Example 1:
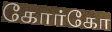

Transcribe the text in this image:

கோர்கோ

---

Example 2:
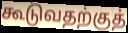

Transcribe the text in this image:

கூடுவதற்குத்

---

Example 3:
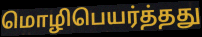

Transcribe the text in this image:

மொழிபெயர்த்தது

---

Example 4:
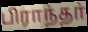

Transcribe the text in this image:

பிராந்தர்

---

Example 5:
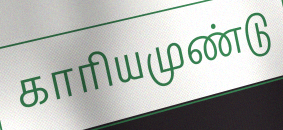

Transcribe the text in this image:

காரியமுண்டு